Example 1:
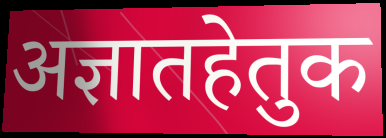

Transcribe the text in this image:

अज्ञातहेतुक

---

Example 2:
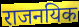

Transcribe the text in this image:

राजनयिक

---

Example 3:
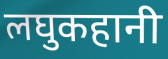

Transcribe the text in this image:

लघुकहानी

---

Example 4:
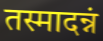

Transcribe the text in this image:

तस्मादन्नं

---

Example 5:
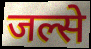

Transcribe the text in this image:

जल्से